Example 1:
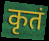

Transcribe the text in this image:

कृतं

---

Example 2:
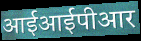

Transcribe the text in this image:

आईआईपीआर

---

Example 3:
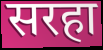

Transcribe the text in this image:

सरहा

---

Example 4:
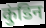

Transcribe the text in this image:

कुंडिन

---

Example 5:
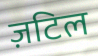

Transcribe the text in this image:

ज़टिल